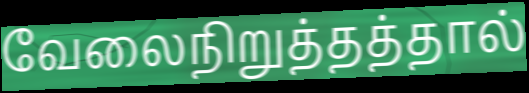
வேலைநிறுத்தத்தால்